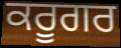
ਕਰੂਗਰ